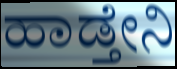
ಹಾಡ್ತೇನಿ